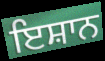
ਇਸ਼ਾਨ